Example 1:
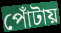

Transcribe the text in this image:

পোঁটায়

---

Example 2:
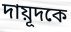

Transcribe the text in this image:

দায়ূদকে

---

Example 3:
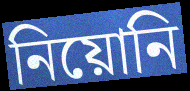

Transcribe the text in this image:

নিয়োনি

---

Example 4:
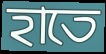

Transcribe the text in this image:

হাতে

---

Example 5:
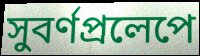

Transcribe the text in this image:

সুবর্ণপ্রলেপে